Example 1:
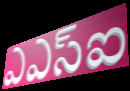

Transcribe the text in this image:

ఎఎస్ఐ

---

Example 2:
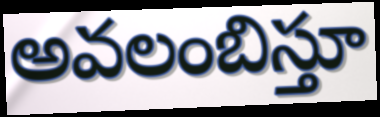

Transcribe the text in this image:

అవలంబిస్తూ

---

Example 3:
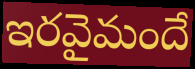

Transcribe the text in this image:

ఇరవైమందే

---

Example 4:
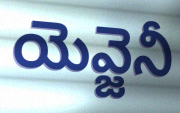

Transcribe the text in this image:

యెవ్జెనీ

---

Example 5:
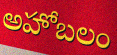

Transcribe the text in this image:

అహోబలం